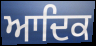
ਆਦਿਕ